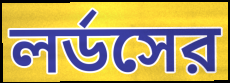
লর্ডসের